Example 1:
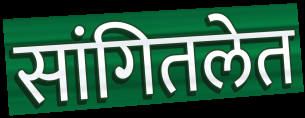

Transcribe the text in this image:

सांगितलेत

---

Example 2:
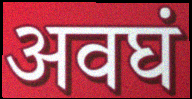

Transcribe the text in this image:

अवघं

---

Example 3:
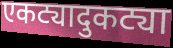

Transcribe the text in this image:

एकट्यादुकट्या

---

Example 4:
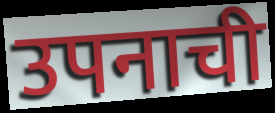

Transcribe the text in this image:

उपनाची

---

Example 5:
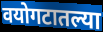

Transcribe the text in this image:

वयोगटातल्या